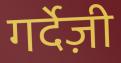
गर्देज़ी